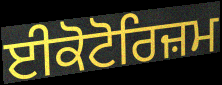
ਈਕੋਟੋਰਿਜ਼ਮ